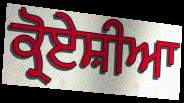
ਕ੍ਰੋਏਸ਼ੀਆ